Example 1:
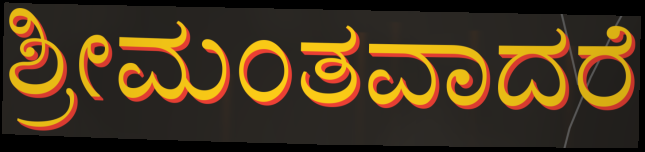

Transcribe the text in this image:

ಶ್ರೀಮಂತವಾದರೆ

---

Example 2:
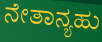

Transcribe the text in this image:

ನೇತಾನ್ಯಹು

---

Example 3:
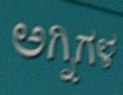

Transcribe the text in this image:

ಅಗ್ನಿಗಳ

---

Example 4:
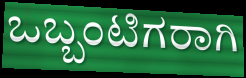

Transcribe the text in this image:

ಒಬ್ಬಂಟಿಗರಾಗಿ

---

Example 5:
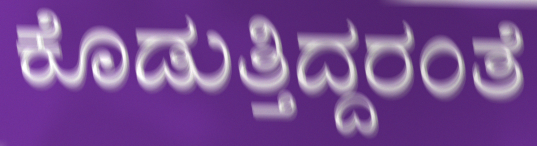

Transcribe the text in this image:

ಕೊಡುತ್ತಿದ್ದರಂತೆ